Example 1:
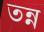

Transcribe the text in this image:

তন্ন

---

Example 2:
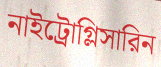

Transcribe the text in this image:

নাইট্রোগ্লিসারিন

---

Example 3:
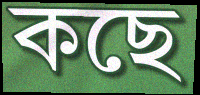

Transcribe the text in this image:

কছে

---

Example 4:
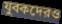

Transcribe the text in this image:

যুবকদেরও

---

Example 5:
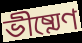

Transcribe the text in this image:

ভীষ্মেণ